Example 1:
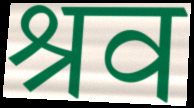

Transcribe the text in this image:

श्रव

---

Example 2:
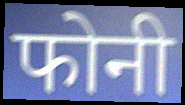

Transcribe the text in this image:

फोनी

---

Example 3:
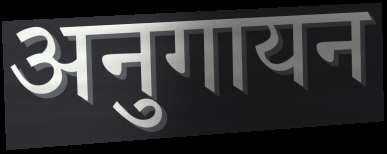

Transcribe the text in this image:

अनुगायन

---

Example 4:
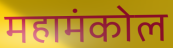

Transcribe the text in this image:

महामंकोल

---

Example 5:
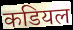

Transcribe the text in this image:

कडियल